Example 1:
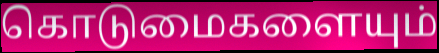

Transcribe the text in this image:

கொடுமைகளையும்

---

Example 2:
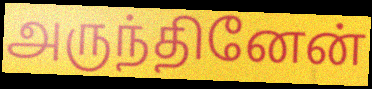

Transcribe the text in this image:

அருந்தினேன்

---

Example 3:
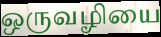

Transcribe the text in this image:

ஒருவழியை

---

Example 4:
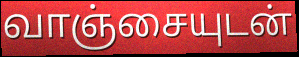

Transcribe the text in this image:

வாஞ்சையுடன்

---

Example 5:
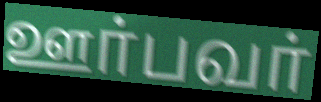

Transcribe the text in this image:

ஊர்பவர்